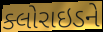
ક્લોરાઇડને